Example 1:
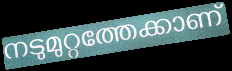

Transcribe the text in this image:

നടുമുറ്റത്തേക്കാണ്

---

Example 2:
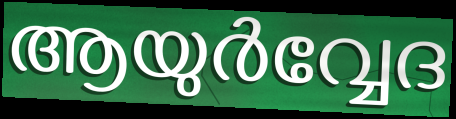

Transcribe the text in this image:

ആയുർവ്വേദ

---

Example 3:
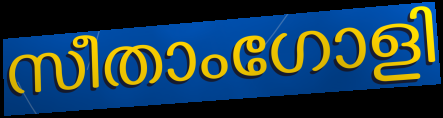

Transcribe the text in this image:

സീതാംഗോളി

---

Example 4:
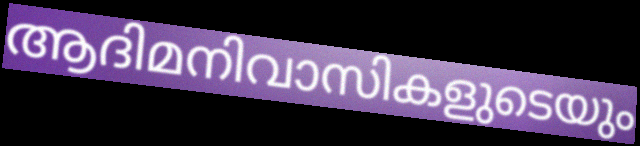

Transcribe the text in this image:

ആദിമനിവാസികളുടെയും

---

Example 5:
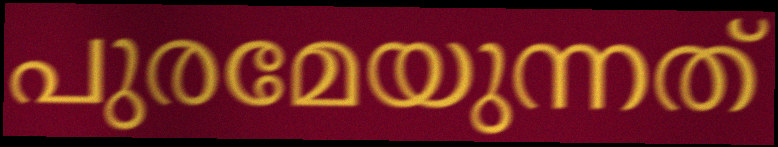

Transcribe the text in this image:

പുരമേയുന്നത്